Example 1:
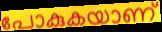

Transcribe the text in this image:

പോകുകയാണ്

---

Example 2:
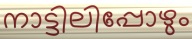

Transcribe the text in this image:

നാട്ടിലിപ്പോഴും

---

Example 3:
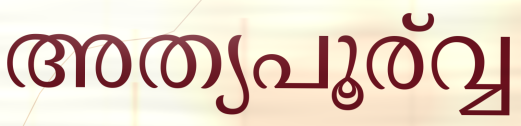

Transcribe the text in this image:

അത്യപൂര്വ്വ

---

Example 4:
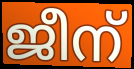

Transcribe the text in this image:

ജീന്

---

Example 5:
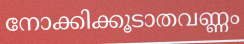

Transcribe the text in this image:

നോക്കിക്കൂടാതവണ്ണം